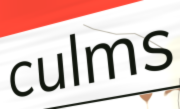
culms